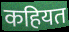
कहियत